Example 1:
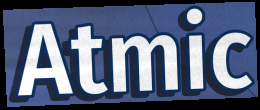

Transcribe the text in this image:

Atmic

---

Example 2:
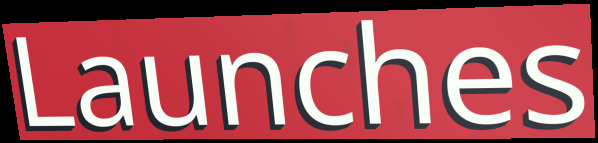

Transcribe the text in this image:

Launches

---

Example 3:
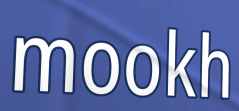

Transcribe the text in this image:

mookh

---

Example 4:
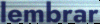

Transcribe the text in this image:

lembrar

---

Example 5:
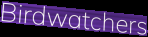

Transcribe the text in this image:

Birdwatchers